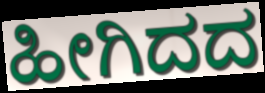
ಹೀಗಿದದ